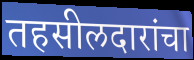
तहसीलदारांचा